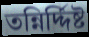
তন্নির্দ্দিষ্ট